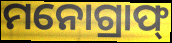
ମନୋଗ୍ରାଫ୍